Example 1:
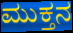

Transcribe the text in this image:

ಮುಕ್ತನ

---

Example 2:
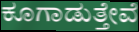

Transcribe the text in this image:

ಕೂಗಾಡುತ್ತೇವೆ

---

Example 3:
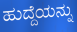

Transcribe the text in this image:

ಹುದ್ದೆಯನ್ನು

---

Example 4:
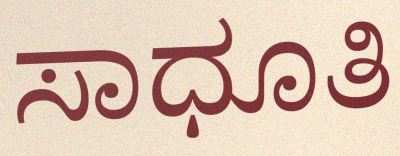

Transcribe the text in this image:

ಸಾಧೂತಿ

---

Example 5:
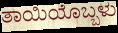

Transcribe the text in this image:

ತಾಯಿಯೊಬ್ಬಳು